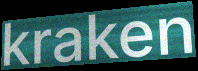
kraken